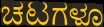
ಚಟಗಳೂ